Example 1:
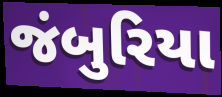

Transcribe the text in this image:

જંબુરિયા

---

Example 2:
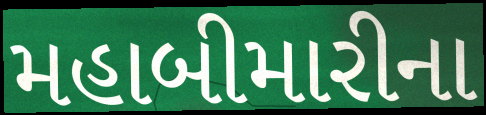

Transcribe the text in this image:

મહાબીમારીના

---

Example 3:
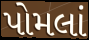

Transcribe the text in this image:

પોમલાં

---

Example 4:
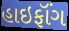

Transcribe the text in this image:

હાઇફૉંગ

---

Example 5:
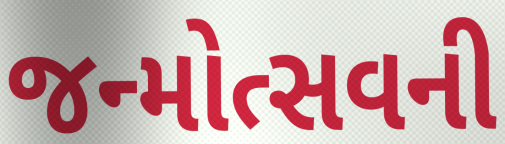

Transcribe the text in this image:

જન્મોત્સવની